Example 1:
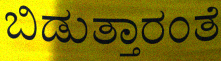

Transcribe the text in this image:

ಬಿಡುತ್ತಾರಂತೆ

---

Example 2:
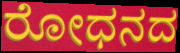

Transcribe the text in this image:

ರೋಧನದ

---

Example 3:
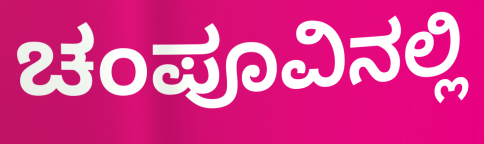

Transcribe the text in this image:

ಚಂಪೂವಿನಲ್ಲಿ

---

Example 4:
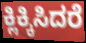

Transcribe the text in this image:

ಕ್ಲಿಕ್ಕಿಸಿದರೆ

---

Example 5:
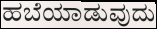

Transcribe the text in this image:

ಹಬೆಯಾಡುವುದು